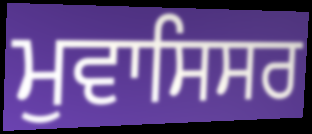
ਮੁਵਾਸਿਸਰ